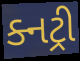
ક્નટ્રી